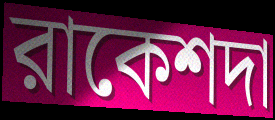
রাকেশদা